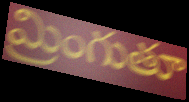
మ్రింగుతూ